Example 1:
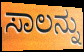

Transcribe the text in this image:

ಸಾಲನ್ನು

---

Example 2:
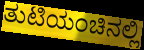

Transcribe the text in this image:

ತುಟಿಯಂಚಿನಲ್ಲಿ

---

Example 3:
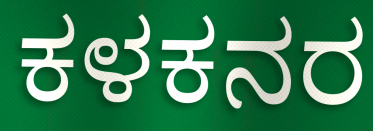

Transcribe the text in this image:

ಕಳಕನರ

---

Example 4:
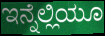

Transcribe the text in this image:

ಇನ್ನೆಲ್ಲಿಯೂ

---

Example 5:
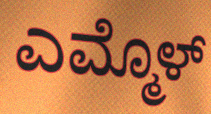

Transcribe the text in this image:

ಎಮ್ಮೊಳ್